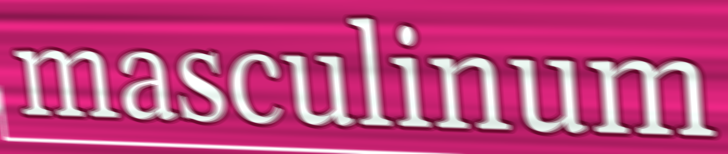
masculinum